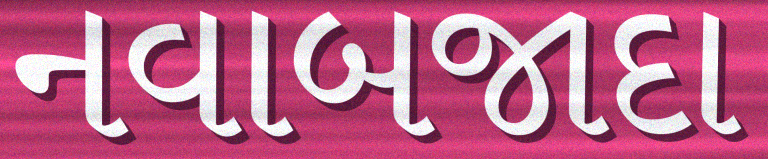
નવાબજાદા